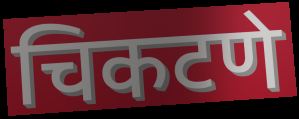
चिकटणे